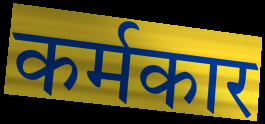
कर्मकार